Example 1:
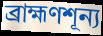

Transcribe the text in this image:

ব্রাহ্মণশূন্য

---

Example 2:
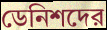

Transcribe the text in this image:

ডেনিশদের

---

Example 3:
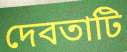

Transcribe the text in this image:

দেবতাটি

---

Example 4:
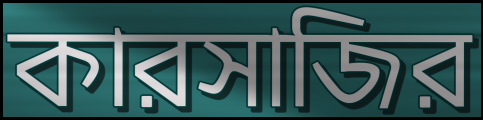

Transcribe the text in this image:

কারসাজির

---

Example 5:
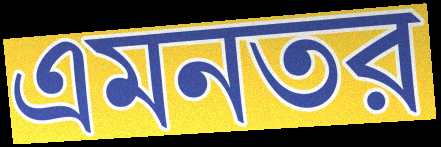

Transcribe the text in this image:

এমনতর